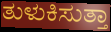
ತುಳುಕಿಸುತ್ತಾ